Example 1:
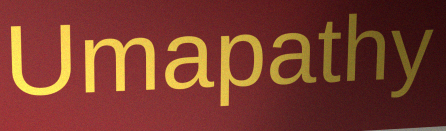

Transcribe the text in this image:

Umapathy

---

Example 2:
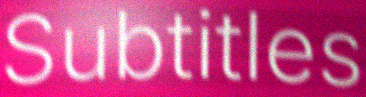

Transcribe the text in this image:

Subtitles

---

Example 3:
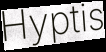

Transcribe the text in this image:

Hyptis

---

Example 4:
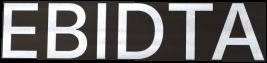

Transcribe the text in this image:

EBIDTA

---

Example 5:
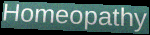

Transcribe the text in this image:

Homeopathy